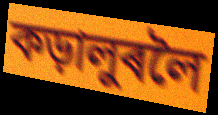
কড়ালুৰলৈ